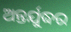
ଅନ୍ତର୍ଯୁଦ୍ଧର